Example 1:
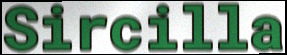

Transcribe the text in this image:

Sircilla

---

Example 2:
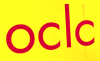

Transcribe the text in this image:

oclc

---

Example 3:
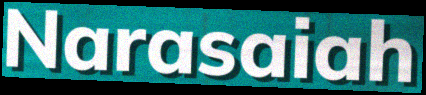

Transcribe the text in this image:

Narasaiah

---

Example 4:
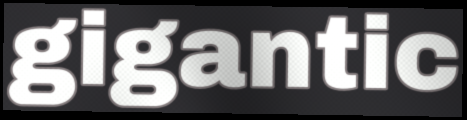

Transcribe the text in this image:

gigantic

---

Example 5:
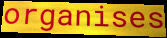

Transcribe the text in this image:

organises